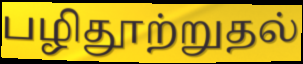
பழிதூற்றுதல்